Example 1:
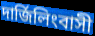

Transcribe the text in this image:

দার্জিলিংবাসী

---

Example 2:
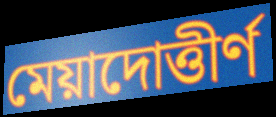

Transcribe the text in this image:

মেয়াদোত্তীর্ণ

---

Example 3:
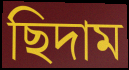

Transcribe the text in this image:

ছিদাম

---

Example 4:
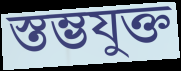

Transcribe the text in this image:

স্তম্ভযুক্ত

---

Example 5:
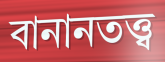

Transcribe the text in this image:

বানানতত্ত্ব